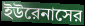
ইউরেনাসের